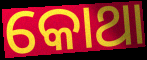
କୋଥା